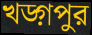
খড়্গপুর